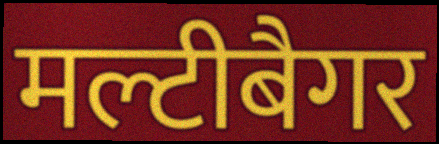
मल्‍टीबैगर